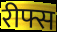
रीफ्स